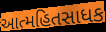
આત્મહિતસાધક